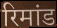
रिमांड